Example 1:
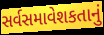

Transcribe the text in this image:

સર્વસમાવેશકતાનું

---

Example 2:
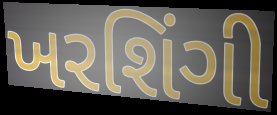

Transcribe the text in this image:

ખરશિંગી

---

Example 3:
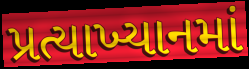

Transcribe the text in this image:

પ્રત્યાખ્યાનમાં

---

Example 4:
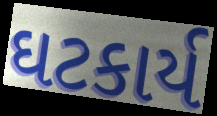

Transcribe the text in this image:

ઘટકાર્ય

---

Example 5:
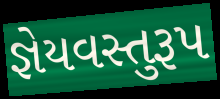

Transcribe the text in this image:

જ્ઞેયવસ્તુરૂપ